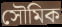
সৌমিক